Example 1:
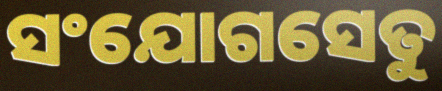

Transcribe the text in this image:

ସଂଯୋଗସେତୁ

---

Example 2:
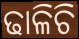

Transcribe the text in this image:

ଢାଳିଚି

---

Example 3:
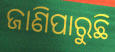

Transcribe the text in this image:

ଜାଣିପାରୁଛି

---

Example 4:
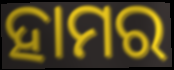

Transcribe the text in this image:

ହାମର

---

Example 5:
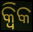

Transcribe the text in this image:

କ୍ୱିକ